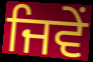
ਜਿਵੇਂ